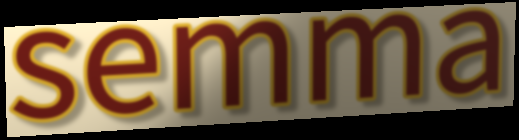
semma